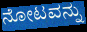
ನೋಟವನ್ನು